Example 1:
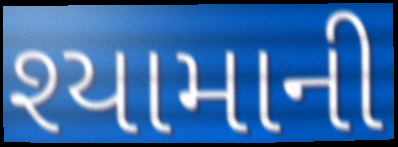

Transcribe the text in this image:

શ્યામાની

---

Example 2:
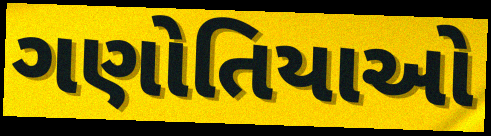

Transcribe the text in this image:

ગણોતિયાઓ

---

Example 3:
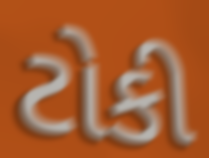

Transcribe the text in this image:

ટોકી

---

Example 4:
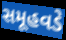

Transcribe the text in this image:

સમૂહવડે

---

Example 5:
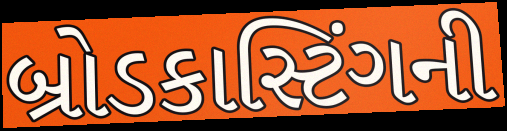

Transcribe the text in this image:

બ્રોડકાસ્ટિંગની